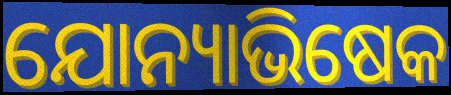
ଯୋନ୍ୟାଭିଷେକ